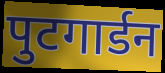
पुटगार्डन